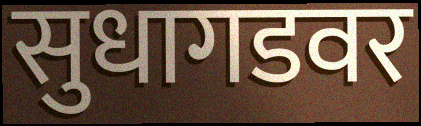
सुधागडवर